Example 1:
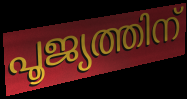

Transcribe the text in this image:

പൂജ്യത്തിന്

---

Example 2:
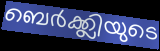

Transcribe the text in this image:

ബെർക്ക്ലിയുടെ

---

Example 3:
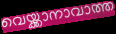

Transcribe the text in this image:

വെയ്ക്കാനാവാത്ത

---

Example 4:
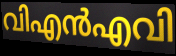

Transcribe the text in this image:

വിഎൻഎവി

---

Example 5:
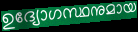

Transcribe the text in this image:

ഉദ്യോഗസ്ഥനുമായ